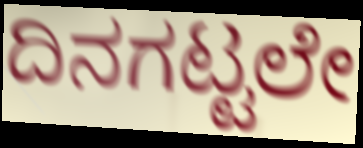
ದಿನಗಟ್ಟಲೇ